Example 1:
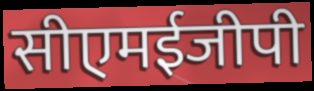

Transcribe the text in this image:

सीएमईजीपी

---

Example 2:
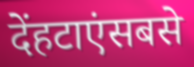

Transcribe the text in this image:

देंहटाएंसबसे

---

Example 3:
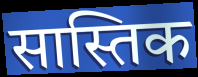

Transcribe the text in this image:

सास्तिक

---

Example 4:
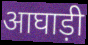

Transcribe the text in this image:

आघाड़ी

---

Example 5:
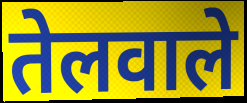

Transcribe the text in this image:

तेलवाले